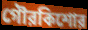
গৌরকিশোর